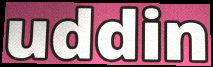
uddin